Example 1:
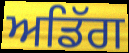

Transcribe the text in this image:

ਅਡਿੱਗ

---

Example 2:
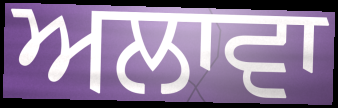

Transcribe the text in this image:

ਅਲਾਵਾ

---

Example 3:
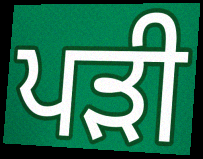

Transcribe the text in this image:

ਪਡ਼ੀ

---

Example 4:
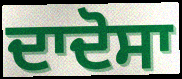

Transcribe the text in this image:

ਦਾਦੋਸਾ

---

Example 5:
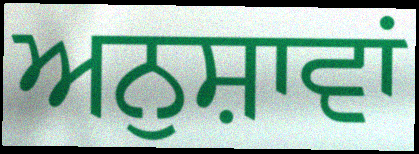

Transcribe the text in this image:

ਅਨੁਸ਼ਾਵਾਂ